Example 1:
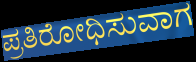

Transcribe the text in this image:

ಪ್ರತಿರೋಧಿಸುವಾಗ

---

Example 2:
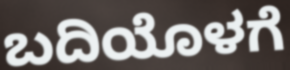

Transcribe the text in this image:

ಬದಿಯೊಳಗೆ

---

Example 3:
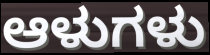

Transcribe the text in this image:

ಆಳುಗಳು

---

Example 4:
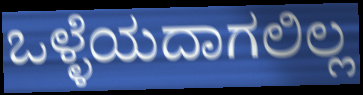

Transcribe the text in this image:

ಒಳ್ಳೆಯದಾಗಲಿಲ್ಲ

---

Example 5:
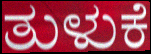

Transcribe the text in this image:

ತುಳುಕೆ